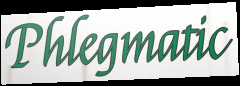
Phlegmatic